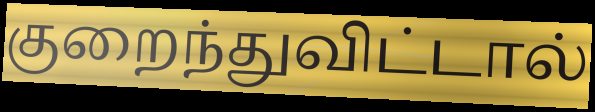
குறைந்துவிட்டால்